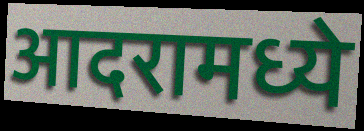
आदरामध्ये